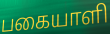
பகையாளி